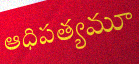
ఆధిపత్యమూ